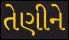
તેણીને